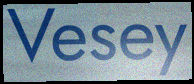
Vesey